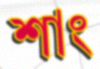
শাং